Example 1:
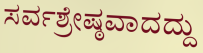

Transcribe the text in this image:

ಸರ್ವಶ್ರೇಷ್ಠವಾದದ್ದು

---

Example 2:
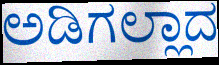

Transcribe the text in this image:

ಅಡಿಗಲ್ಲಾದ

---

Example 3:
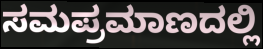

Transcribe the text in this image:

ಸಮಪ್ರಮಾಣದಲ್ಲಿ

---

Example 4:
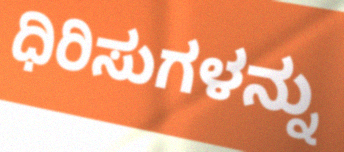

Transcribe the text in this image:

ಧಿರಿಸುಗಳನ್ನು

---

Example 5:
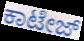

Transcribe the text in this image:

ಕಾಟೇಜ್